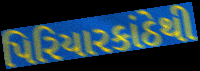
પિરિયારકાંઠેથી